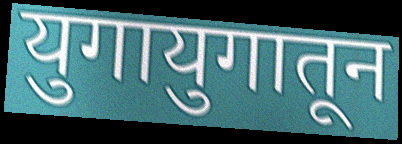
युगायुगातून